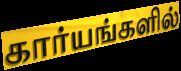
கார்யங்களில்